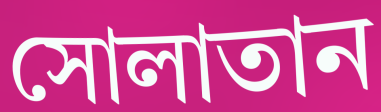
সোলাতান